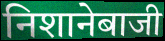
निशानेबाजी